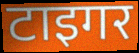
टाइगर